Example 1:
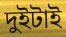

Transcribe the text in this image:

দুইটাই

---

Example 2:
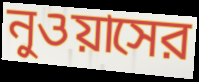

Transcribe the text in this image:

নুওয়াসের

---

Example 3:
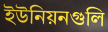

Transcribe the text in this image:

ইউনিয়নগুলি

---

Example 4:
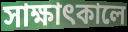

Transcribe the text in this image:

সাক্ষাৎকালে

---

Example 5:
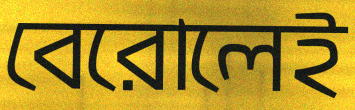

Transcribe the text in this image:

বেরোলেই